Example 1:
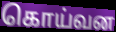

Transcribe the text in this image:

கொய்வன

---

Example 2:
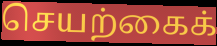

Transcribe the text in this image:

செயற்கைக்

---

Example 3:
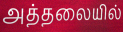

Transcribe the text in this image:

அத்தலையில்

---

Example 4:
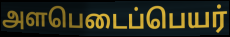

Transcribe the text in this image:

அளபெடைப்பெயர்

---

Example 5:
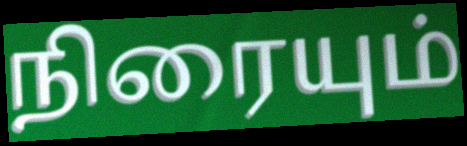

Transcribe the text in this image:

நிரையும்